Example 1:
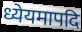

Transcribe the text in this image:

ध्येयमापदि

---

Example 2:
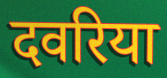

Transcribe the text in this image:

दवरिया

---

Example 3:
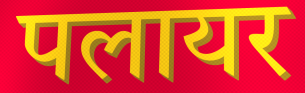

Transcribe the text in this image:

पलायर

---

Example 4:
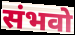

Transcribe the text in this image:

संभवो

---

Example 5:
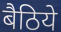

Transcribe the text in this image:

बैठिये